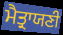
ਮੈਤ੍ਰਾਯਣੀ